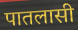
पातलासी